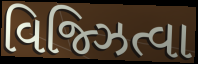
વિજ્ઝિત્વા